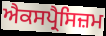
ਐਕਸਪ੍ਰੈਸਿਜ਼ਮ